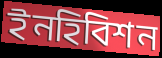
ইনহিবিশন